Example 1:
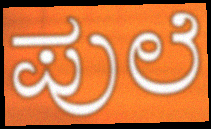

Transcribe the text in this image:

ಪುಲೆ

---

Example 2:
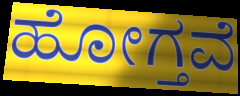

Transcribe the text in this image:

ಹೋಗ್ತವೆ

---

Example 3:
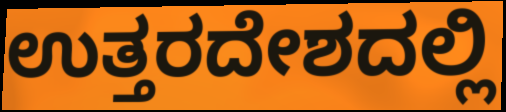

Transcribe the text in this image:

ಉತ್ತರದೇಶದಲ್ಲಿ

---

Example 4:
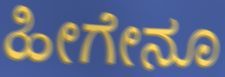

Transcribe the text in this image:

ಹೀಗೇನೂ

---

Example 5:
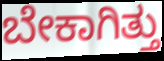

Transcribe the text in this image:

ಬೇಕಾಗಿತ್ತು